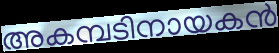
അകമ്പടിനായകൻ